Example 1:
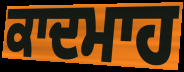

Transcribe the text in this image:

ਕਾਦਮਾਹ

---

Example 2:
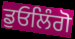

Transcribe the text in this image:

ਡੁਓਲਿੰਗੋ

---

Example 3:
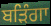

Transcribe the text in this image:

ਬੜਿੰਗਾ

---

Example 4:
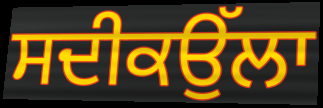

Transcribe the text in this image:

ਸਦੀਕਉੱਲਾ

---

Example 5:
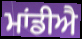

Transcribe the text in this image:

ਮਾਂਡੀਐ